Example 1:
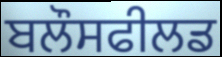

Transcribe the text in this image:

ਬਲੌਸਫੀਲਡ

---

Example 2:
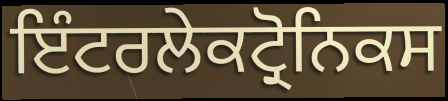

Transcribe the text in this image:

ਇੰਟਰਲੇਕਟ੍ਰੋਨਿਕਸ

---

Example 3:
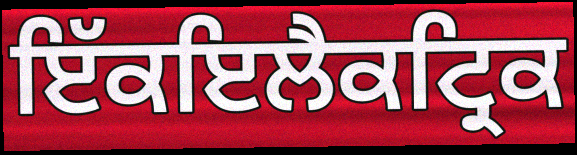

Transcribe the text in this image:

ਇੱਕਇਲੈਕਟ੍ਰਿਕ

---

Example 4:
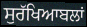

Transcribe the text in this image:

ਸੁਰੱਖਿਆਬਲਾਂ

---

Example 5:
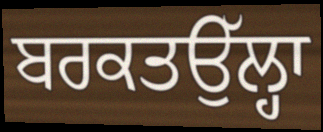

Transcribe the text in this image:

ਬਰਕਤਉੱਲ੍ਹਾ